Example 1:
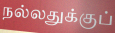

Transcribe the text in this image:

நல்லதுக்குப்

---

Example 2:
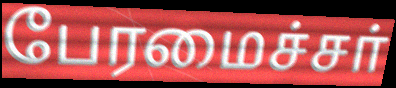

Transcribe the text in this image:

பேரமைச்சர்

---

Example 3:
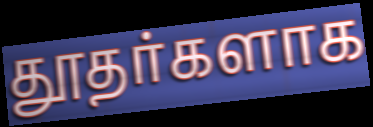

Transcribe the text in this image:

தூதர்களாக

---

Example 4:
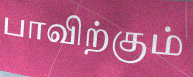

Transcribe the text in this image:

பாவிற்கும்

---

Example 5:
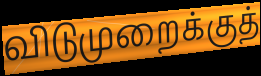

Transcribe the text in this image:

விடுமுறைக்குத்